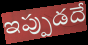
ఇప్పుడదే